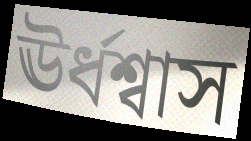
ঊর্ধশ্বাস